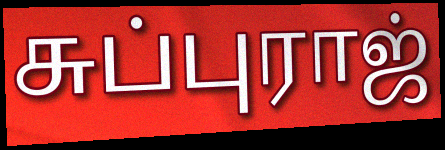
சுப்புராஜ்